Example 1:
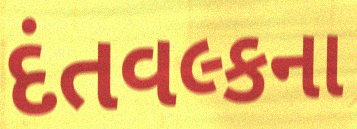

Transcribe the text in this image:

દંતવલ્કના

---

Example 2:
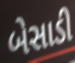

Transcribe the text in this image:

બેસાડી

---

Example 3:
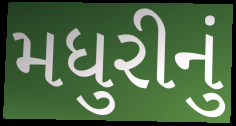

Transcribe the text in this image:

મધુરીનું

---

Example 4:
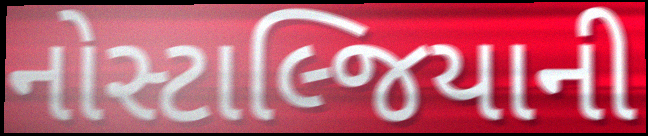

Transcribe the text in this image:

નોસ્ટાલ્જિયાની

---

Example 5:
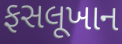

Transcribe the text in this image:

ફસલૂખાન